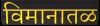
विमानातळ